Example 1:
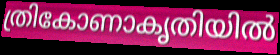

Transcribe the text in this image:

ത്രികോണാകൃതിയിൽ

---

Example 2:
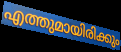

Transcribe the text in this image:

എത്തുമായിരിക്കും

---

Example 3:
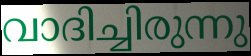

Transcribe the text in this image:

വാദിച്ചിരുന്നു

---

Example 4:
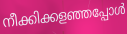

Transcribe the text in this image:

നീക്കിക്കളഞ്ഞപ്പോൾ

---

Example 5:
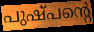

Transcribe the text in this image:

പുഷ്പന്റെ